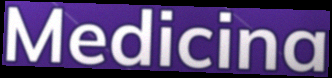
Medicina